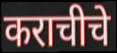
कराचीचे